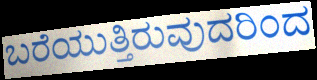
ಬರೆಯುತ್ತಿರುವುದರಿಂದ